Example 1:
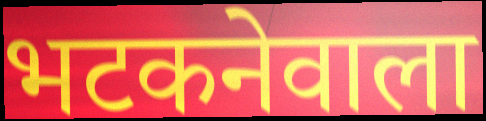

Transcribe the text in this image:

भटकनेवाला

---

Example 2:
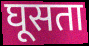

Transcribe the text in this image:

घूसता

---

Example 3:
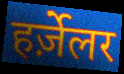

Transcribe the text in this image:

हर्ज़ेलर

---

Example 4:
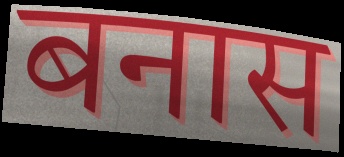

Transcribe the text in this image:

बनास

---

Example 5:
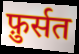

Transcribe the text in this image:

फ़ुर्सत